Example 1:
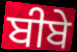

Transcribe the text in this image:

ਬੀਬੇ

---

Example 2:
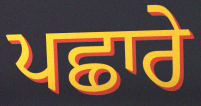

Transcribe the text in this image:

ਪਛਾਰੇ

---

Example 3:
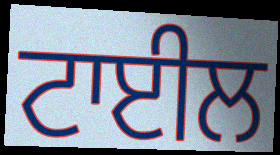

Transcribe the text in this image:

ਟਾਈਲ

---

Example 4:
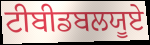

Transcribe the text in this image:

ਟੀਬੀਡਬਲਯੂਏ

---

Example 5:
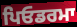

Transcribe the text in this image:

ਪਿਓਡਰਮਾ